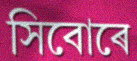
সিবোৰে